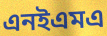
এনইএমএ